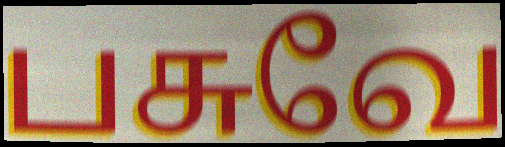
பசுவே